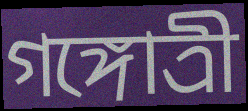
গঙ্গোত্ৰী